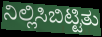
ನಿಲ್ಲಿಸಿಬಿಟ್ಟಿತು